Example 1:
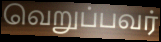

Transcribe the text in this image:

வெறுப்பவர்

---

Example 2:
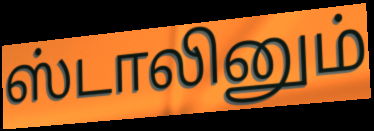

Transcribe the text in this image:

ஸ்டாலினும்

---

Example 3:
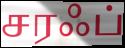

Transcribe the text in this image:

சரஃப்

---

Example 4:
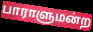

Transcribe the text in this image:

பாராளுமன்ற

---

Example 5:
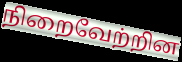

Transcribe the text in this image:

நிறைவேற்றின